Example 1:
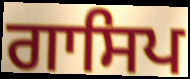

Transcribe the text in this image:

ਗਾਸਿਪ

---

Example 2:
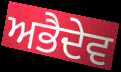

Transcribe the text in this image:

ਅਭੈਦੇਵ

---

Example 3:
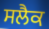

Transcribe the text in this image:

ਸਲੈਕ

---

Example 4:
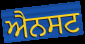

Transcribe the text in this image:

ਐਨਸਟ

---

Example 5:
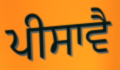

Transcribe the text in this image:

ਪੀਸਾਵੈ